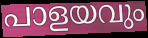
പാളയവും